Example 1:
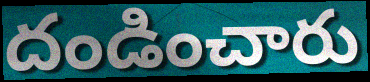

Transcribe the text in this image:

దండించారు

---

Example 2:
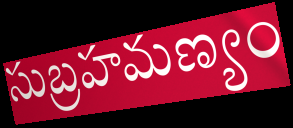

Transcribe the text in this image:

సుబ్రహమణ్యం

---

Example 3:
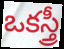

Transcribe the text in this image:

ఒకస్త్రీ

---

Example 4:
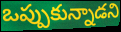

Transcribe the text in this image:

ఒప్పుకున్నాడని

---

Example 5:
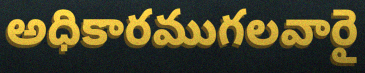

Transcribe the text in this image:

అధికారముగలవారై